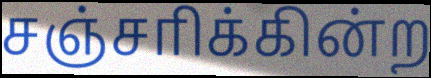
சஞ்சரிக்கின்ற